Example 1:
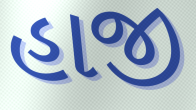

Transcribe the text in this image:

હાજી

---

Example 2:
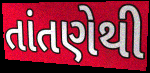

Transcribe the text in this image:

તાંતણેથી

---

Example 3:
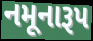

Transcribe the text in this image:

નમૂનારૂપ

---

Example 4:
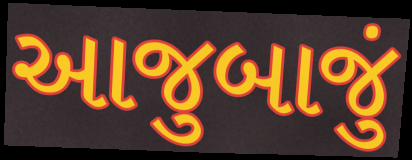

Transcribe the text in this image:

આજુબાજું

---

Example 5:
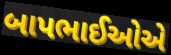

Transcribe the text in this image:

બાપભાઈઓએ